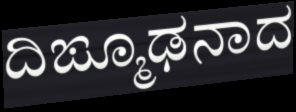
ದಿಙ್ಮೂಢನಾದ